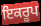
ਇਕਰੂਪ